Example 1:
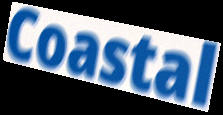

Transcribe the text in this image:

Coastal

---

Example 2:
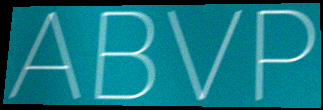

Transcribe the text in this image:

ABVP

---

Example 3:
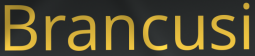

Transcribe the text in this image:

Brancusi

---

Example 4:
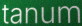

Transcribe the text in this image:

tanum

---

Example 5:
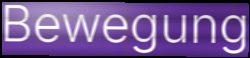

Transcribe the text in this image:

Bewegung